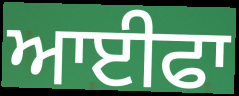
ਆਈਫਾ